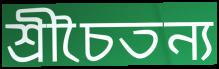
শ্রীচৈতন্য